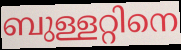
ബുള്ളറ്റിനെ